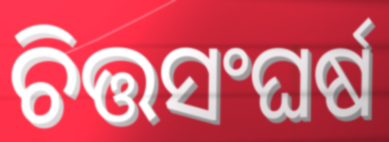
ଚିତ୍ତସଂଘର୍ଷ